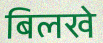
बिलखे